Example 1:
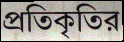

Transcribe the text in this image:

প্রতিকৃতির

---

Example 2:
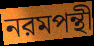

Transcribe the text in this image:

নরমপন্থী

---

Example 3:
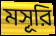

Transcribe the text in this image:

মসূরি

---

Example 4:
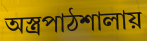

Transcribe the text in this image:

অস্ত্রপাঠশালায়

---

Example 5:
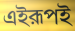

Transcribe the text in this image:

এইরূপই